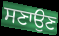
ਸਣਾਉਣ